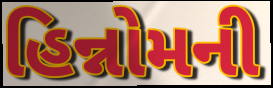
હિન્નોમની